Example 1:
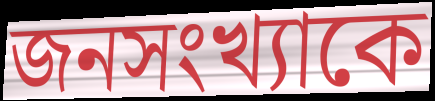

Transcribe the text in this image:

জনসংখ্যাকে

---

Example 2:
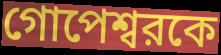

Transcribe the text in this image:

গোপেশ্বরকে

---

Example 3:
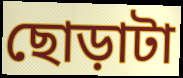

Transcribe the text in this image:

ছোড়াটা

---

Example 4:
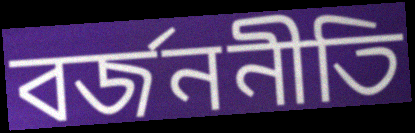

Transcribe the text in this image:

বর্জননীতি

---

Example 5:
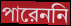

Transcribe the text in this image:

পারেননি